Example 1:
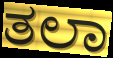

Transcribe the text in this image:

ತಲಾ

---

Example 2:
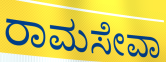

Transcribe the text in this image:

ರಾಮಸೇವಾ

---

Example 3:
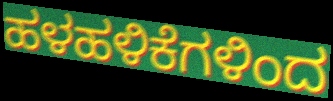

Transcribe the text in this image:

ಹಳಹಳಿಕೆಗಳಿಂದ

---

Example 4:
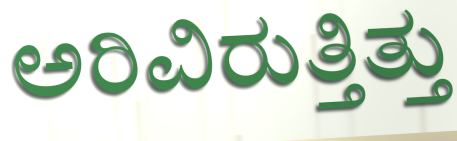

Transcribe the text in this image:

ಅರಿವಿರುತ್ತಿತ್ತು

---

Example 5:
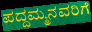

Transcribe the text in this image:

ಪದ್ದಮ್ಮನವರಿಗೆ